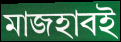
মাজহাবই